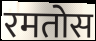
रमतोस